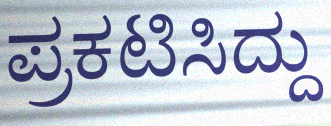
ಪ್ರಕಟಿಸಿದ್ದು